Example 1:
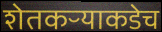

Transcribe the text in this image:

शेतकऱ्याकडेच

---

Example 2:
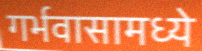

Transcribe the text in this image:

गर्भवासामध्ये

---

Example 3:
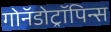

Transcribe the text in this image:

गोनॅडोट्रॉपिन्स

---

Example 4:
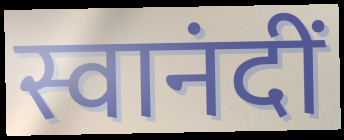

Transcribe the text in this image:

स्वानंदीं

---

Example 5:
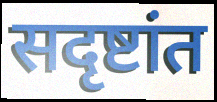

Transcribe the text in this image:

सदृष्टांत